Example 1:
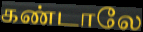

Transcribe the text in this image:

கண்டாலே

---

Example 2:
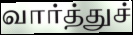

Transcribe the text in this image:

வார்த்துச்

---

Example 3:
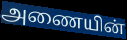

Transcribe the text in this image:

அணையின்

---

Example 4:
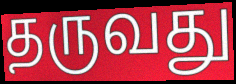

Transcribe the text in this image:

தருவது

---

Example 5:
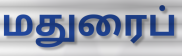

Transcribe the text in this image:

மதுரைப்